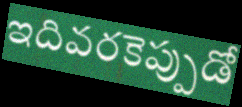
ఇదివరకెప్పుడో